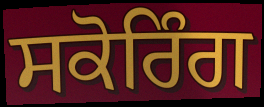
ਸਕੋਰਿੰਗ